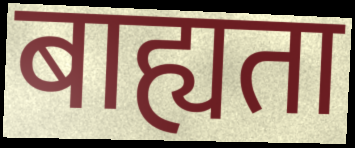
बाह्यता